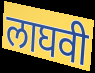
लाघवी